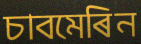
চাবমেৰিন